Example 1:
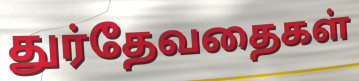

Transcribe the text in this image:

துர்தேவதைகள்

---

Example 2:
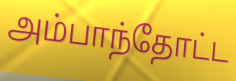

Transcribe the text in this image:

அம்பாந்தோட்ட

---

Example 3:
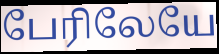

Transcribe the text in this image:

பேரிலேயே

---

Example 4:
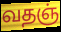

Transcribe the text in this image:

வதஞ்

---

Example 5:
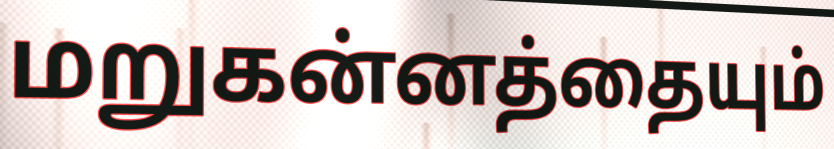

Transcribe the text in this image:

மறுகன்னத்தையும்